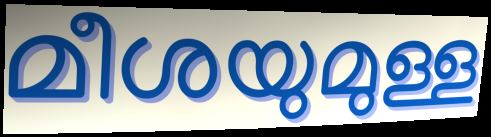
മീശയുമുള്ള